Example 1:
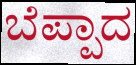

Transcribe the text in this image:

ಬೆಪ್ಪಾದ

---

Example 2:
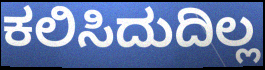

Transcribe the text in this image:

ಕಲಿಸಿದುದಿಲ್ಲ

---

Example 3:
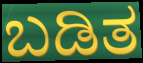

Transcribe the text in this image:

ಬಡಿತ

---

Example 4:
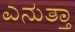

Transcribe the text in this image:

ಎನುತ್ತಾ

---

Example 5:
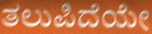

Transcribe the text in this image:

ತಲುಪಿದೆಯೇ